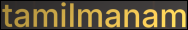
tamilmanam